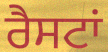
ਰੈਸਟਾਂ